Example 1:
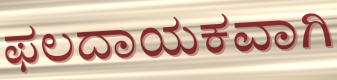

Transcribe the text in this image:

ಫಲದಾಯಕವಾಗಿ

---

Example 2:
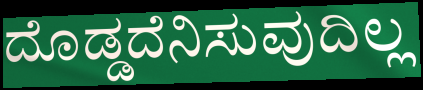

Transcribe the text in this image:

ದೊಡ್ಡದೆನಿಸುವುದಿಲ್ಲ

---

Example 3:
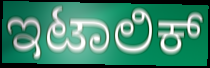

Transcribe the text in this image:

ಇಟಾಲಿಕ್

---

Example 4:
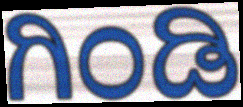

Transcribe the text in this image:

ಗಿಂಡಿ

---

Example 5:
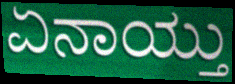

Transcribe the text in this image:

ಏನಾಯ್ತು